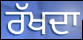
ਰੱਖਦਾ